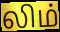
லிம்